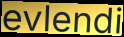
evlendi